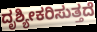
ದೃಶ್ಯೀಕರಿಸುತ್ತದೆ